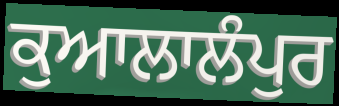
ਕੁਆਲਾਲੰਪੁਰ